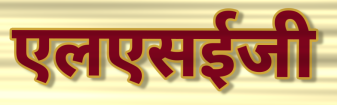
एलएसईजी